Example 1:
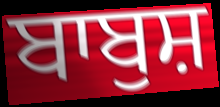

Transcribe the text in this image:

ਬਾਬੁਸ਼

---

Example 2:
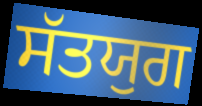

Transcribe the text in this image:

ਸੱਤਯੁਗ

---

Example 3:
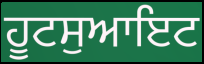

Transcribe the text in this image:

ਹੂਟਸੁਆਇਟ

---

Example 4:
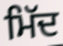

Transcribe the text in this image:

ਮਿੱਦ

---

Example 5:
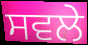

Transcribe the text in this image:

ਸਵਲੇ